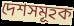
দেশসমূহক